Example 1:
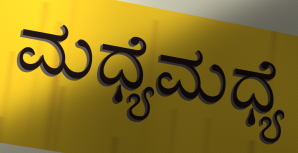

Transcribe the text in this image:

ಮಧ್ಯೆಮಧ್ಯೆ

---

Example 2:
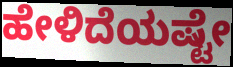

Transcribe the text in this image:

ಹೇಳಿದೆಯಷ್ಟೇ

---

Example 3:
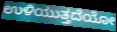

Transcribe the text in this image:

ಉಳಿಯುತ್ತದೆಯೋ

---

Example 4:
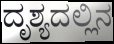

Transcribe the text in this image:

ದೃಶ್ಯದಲ್ಲಿನ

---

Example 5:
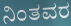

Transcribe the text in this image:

ನಿಂತವರ